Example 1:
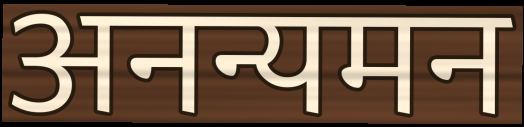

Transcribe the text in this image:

अनन्यमन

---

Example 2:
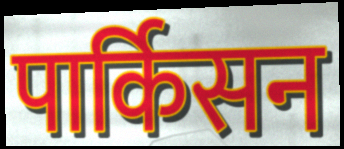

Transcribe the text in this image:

पार्किसन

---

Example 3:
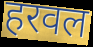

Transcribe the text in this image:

हरवल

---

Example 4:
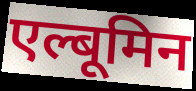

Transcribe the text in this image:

एल्बूमिन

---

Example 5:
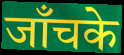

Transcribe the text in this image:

जाँचके